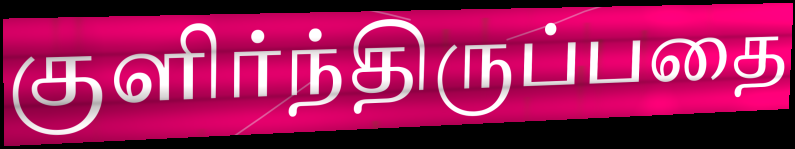
குளிர்ந்திருப்பதை